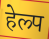
हेल्प